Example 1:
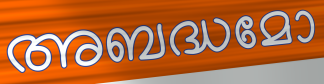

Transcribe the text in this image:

അബദ്ധമോ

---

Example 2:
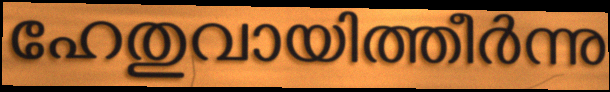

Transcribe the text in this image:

ഹേതുവായിത്തീർന്നു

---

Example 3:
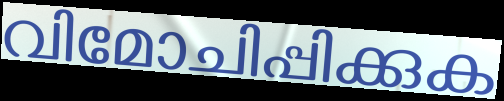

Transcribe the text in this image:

വിമോചിപ്പിക്കുക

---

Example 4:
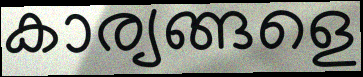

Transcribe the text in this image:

കാര്യങ്ങളെ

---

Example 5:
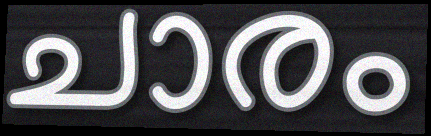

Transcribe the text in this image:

ചാരം